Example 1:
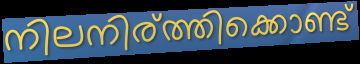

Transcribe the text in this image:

നിലനിര്ത്തിക്കൊണ്ട്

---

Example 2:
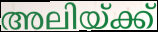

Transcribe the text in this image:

അലിയ്ക്ക്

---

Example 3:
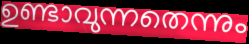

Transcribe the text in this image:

ഉണ്ടാവുന്നതെന്നും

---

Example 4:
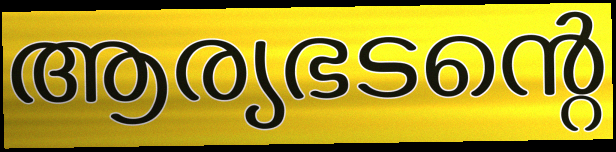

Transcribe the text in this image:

ആര്യഭടന്റെ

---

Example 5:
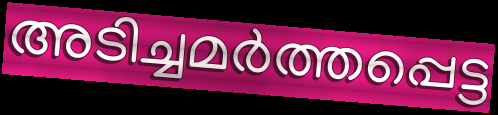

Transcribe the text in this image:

അടിച്ചമർത്തപ്പെട്ട